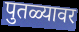
पुतळ्यावर